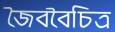
জৈববৈচিত্র